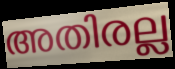
അതിരല്ല